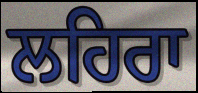
ਲਹਿਰਾ